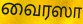
வைரஸா